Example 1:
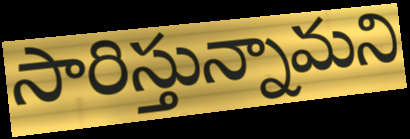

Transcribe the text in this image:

సారిస్తున్నామని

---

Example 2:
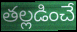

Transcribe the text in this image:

తల్లడించే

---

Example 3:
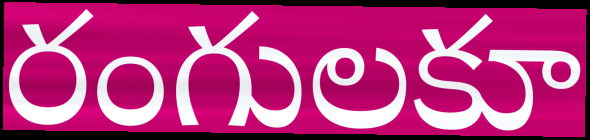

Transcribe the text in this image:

రంగులకూ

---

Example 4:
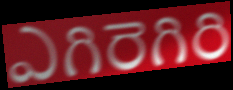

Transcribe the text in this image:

ఎగిరెగిరి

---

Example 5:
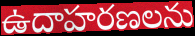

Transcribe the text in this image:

ఉదాహరణలను